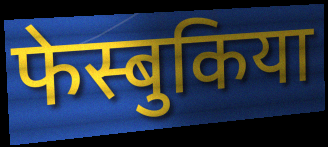
फेस्बुकिया